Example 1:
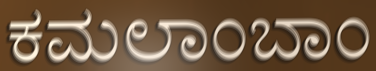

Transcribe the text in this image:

ಕಮಲಾಂಬಾಂ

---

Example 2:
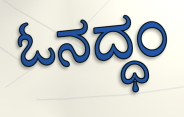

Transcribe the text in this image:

ಓನದ್ಧಂ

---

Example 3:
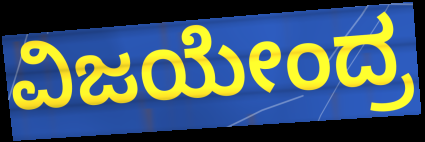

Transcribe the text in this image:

ವಿಜಯೇಂದ್ರ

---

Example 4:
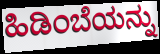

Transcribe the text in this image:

ಹಿಡಿಂಬೆಯನ್ನು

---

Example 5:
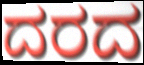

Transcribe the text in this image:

ದರದ